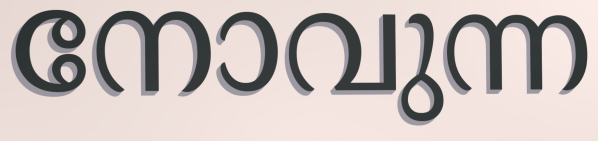
നോവുന്ന